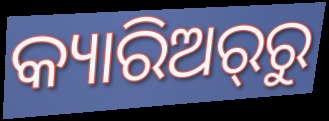
କ୍ୟାରିଅର୍‌ରୁ